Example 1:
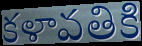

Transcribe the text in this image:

కళావతికి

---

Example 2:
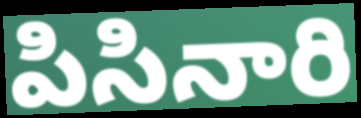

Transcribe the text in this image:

పిసినారి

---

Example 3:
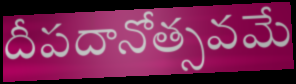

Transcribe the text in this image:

దీపదానోత్సవమే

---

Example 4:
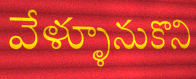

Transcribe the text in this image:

వేళ్ళూనుకొని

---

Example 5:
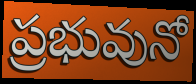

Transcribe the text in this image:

ప్రభువునో